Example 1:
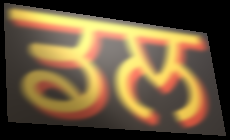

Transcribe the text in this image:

ਡਲ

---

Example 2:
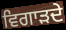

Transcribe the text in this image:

ਵਿਗਾੜਦੇ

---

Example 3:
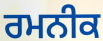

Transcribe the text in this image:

ਰਮਨੀਕ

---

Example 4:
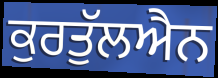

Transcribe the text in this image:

ਕੁਰਤੁੱਲਐਨ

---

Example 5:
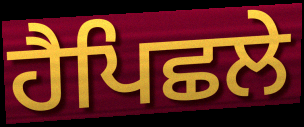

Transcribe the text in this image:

ਹੈਪਿਛਲੇ